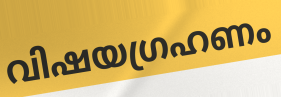
വിഷയഗ്രഹണം